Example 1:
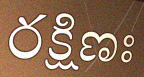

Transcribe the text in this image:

రక్షిణః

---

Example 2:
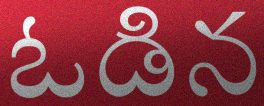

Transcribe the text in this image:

ఓడిన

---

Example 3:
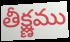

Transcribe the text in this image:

తీక్ష్ణము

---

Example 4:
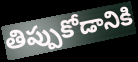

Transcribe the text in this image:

తిప్పుకోడానికి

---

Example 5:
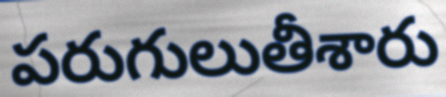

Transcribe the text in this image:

పరుగులుతీశారు